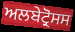
ਅਲਬੇਟ੍ਰੋਸਸ